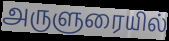
அருளுரையில்